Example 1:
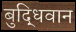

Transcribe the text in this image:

बुद्धिवान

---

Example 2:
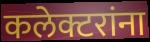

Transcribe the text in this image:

कलेक्टरांना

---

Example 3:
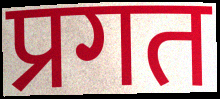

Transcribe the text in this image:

प्रगत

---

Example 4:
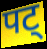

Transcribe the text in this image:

पट्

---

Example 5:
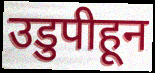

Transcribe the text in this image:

उडुपीहून